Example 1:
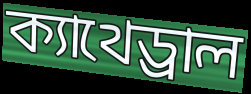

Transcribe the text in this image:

ক্যাথেড্রাল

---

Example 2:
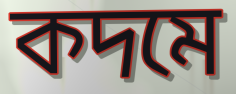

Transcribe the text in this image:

কদমে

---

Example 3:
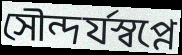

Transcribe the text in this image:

সৌন্দর্যস্বপ্নে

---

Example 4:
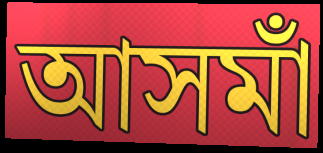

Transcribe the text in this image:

আসমাঁ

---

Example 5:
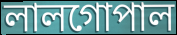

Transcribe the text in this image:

লালগোপাল